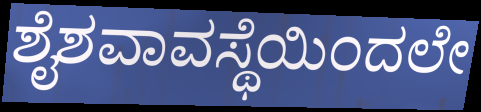
ಶೈಶವಾವಸ್ಥೆಯಿಂದಲೇ